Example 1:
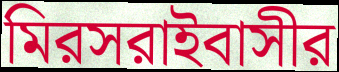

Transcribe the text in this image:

মিরসরাইবাসীর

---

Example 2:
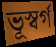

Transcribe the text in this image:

ভূস্বর্গ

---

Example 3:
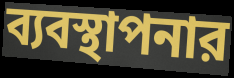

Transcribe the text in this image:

ব্যবস্থাপনার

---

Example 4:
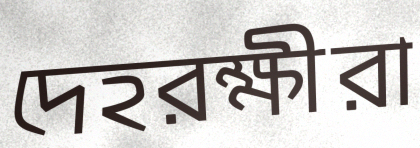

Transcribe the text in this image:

দেহরক্ষীরা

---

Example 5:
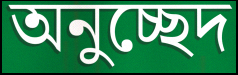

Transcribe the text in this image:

অনুচ্ছেদ